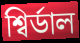
শ্বিৰ্ডাল